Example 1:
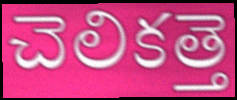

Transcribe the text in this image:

చెలికత్తె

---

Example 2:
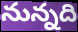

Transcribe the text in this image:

నున్నది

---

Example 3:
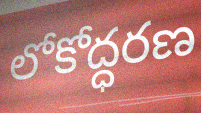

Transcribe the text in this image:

లోకోద్ధరణ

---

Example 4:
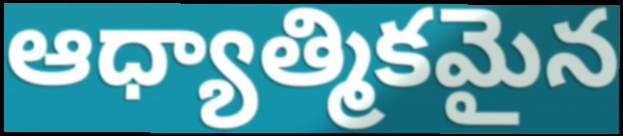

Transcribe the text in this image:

ఆధ్యాత్మికమైన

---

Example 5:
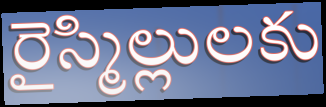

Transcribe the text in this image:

రైస్మిల్లులకు